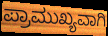
ಪ್ರಾಮುಖ್ಯವಾಗಿ